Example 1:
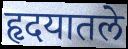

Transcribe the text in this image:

हृदयातले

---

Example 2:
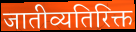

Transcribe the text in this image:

जातीव्यतिरिक्त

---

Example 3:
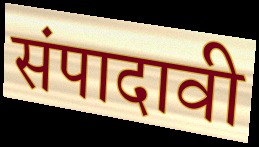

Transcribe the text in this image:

संपादावी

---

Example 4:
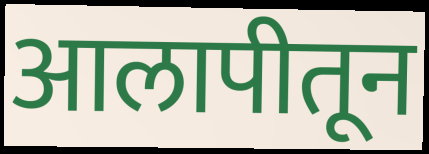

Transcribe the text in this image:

आलापीतून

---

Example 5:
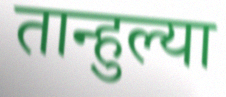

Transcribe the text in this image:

तान्हुल्या